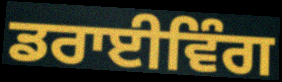
ਡਰਾਈਵਿੰਗ